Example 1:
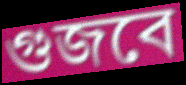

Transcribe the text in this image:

গুজবে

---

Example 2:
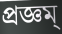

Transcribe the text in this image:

প্রজ্ঞম্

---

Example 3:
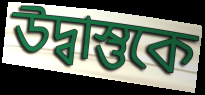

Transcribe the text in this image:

উদ্বাস্তুকে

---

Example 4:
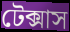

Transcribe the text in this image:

টেক্সাস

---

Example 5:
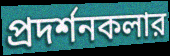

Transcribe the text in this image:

প্রদর্শনকলার